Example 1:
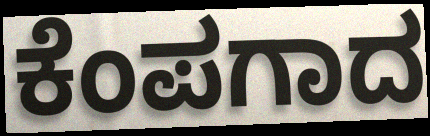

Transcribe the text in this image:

ಕೆಂಪಗಾದ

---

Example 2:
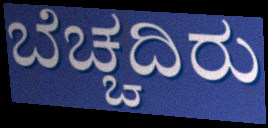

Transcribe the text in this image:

ಬೆಚ್ಚದಿರು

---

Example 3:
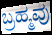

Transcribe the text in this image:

ಬ್ರಹ್ಮವು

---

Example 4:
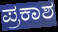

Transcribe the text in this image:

ಪ್ರಕಾಶ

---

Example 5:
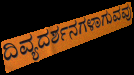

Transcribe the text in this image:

ದಿವ್ಯದರ್ಶನಗಳಾಗುವವು